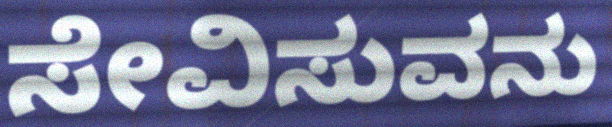
ಸೇವಿಸುವನು